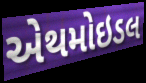
એથમોઇડલ